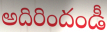
అదిరిందండీ